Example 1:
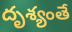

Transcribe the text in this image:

దృశ్యంతే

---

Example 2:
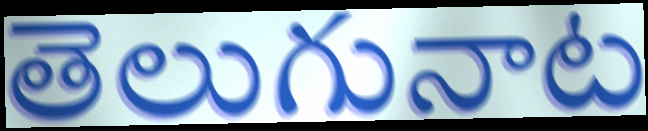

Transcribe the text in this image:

తెలుగునాట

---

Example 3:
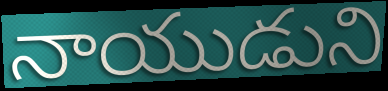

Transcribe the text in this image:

నాయుడుని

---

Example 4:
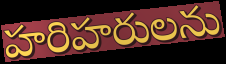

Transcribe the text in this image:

హరిహరులను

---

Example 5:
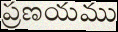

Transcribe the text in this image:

ప్రణయము